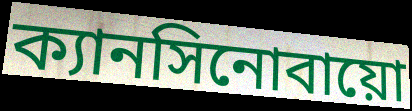
ক্যানসিনোবায়ো